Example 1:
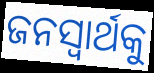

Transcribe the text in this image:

ଜନସ୍ବାର୍ଥକୁ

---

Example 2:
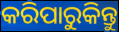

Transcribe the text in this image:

କରିପାରୁକିନ୍ତୁ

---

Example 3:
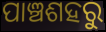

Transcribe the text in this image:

ପାଞ୍ଚଶହରୁ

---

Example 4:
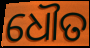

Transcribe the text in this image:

ଧୌତ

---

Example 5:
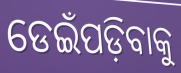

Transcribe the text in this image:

ଡେଇଁପଡ଼ିବାକୁ